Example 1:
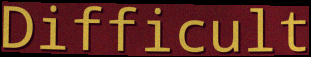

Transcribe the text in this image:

Difficult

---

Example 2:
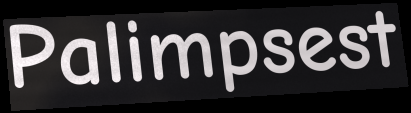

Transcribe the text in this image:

Palimpsest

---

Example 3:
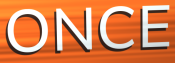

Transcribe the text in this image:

ONCE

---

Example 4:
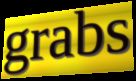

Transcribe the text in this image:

grabs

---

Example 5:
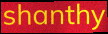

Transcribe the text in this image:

shanthy